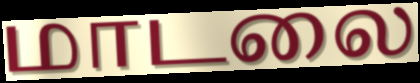
மாடலை